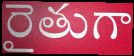
రైతుగా